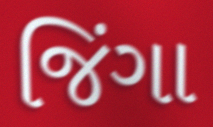
જિંગા